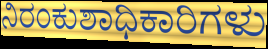
ನಿರಂಕುಶಾಧಿಕಾರಿಗಳು